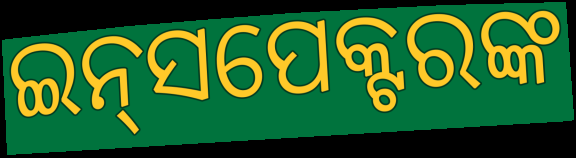
ଇନ୍‍ସପେକ୍ଟରଙ୍କ